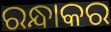
ରନ୍ଧାକର